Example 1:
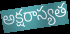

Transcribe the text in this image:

అక్షరాస్యత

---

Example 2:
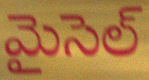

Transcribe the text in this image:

మైసెల్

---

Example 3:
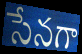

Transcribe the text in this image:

సేనగా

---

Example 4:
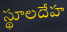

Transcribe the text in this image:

స్థూలదేహ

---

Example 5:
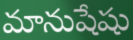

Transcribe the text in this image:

మానుషేషు